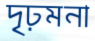
দৃঢ়মনা